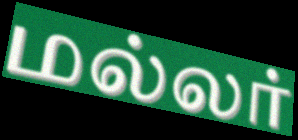
மல்லர்